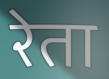
रेता